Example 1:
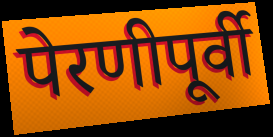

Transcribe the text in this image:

पेरणीपूर्वी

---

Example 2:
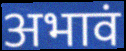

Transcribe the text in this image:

अभावं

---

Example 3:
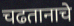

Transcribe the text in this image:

चढतानाचे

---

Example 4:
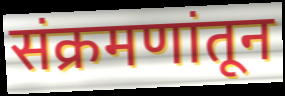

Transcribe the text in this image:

संक्रमणांतून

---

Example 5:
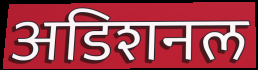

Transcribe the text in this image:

अडिशनल